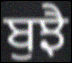
ਬੁਝੈ